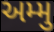
અમ્મુ